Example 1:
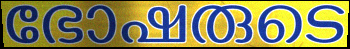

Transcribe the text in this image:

ഭോഷരുടെ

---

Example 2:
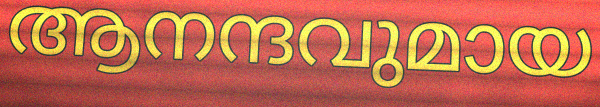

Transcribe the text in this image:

ആനന്ദവുമായ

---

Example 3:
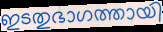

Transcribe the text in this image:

ഇടതുഭാഗത്തായി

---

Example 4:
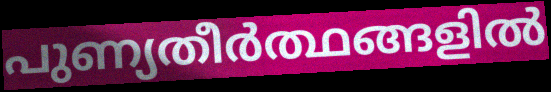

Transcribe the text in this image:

പുണ്യതീർത്ഥങ്ങളിൽ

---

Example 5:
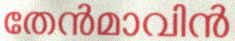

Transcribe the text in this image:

തേൻമാവിൻ